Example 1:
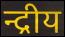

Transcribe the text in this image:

न्द्रीय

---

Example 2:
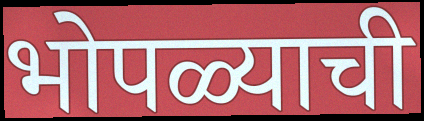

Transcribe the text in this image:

भोपळ्याची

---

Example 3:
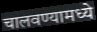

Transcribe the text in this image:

चालवण्यामध्ये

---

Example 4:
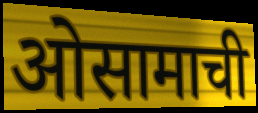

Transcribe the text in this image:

ओसामाची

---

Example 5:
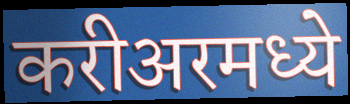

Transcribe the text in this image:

करीअरमध्ये